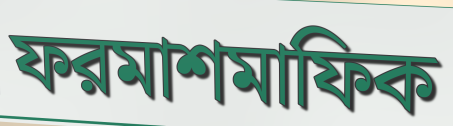
ফরমাশমাফিক